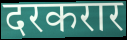
दरकरार